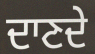
ਦਾਣਦੇ